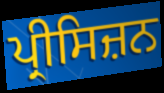
ਪ੍ਰੀਸਿਜ਼ਨ